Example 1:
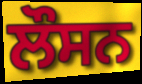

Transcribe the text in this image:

ਲੌਸਨ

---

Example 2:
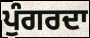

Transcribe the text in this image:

ਪੁੰਗਰਦਾ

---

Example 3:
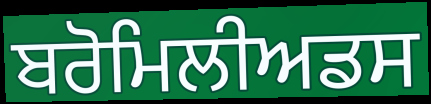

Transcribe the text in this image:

ਬਰੋਮਿਲੀਅਡਸ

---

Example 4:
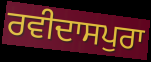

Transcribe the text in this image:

ਰਵੀਦਾਸਪੁਰਾ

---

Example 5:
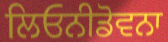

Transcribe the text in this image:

ਲਿਓਨੀਡੋਵਨਾ